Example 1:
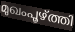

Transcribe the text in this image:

മുഖംപൂഴ്ത്തി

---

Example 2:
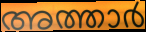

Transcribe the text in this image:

അത്താർ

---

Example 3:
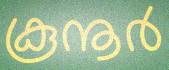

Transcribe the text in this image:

കൂനൂർ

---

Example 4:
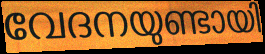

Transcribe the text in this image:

വേദനയുണ്ടായി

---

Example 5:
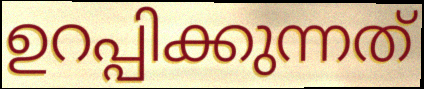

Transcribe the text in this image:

ഉറപ്പിക്കുന്നത്